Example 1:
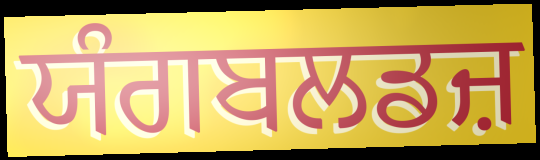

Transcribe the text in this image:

ਯੰਗਬਲਡਜ਼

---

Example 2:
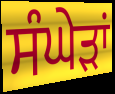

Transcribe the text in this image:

ਸੰਘੇੜਾਂ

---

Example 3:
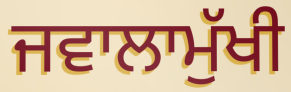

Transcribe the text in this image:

ਜਵਾਲਾਮੁੱਖੀ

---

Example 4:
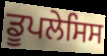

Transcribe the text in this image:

ਡੂਪਲੇਸਿਸ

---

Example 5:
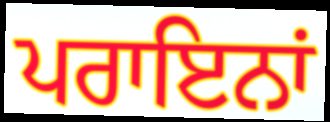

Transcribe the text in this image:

ਪਰਾਇਨਾਂ